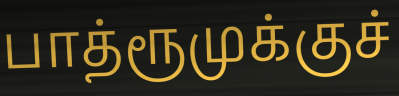
பாத்ரூமுக்குச்